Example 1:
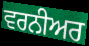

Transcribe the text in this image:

ਵਰਨੀਅਰ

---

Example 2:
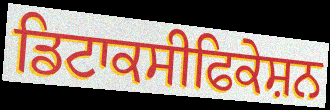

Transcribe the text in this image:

ਡਿਟਾਕਸੀਫਿਕੇਸ਼ਨ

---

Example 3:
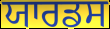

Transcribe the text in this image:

ਯਾਰਡਸ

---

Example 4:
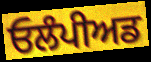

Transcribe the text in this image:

ਓਲੰਪੀਅਡ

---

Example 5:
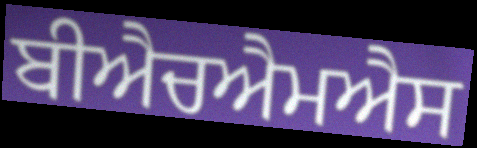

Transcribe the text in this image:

ਬੀਐਚਐਮਐਸ